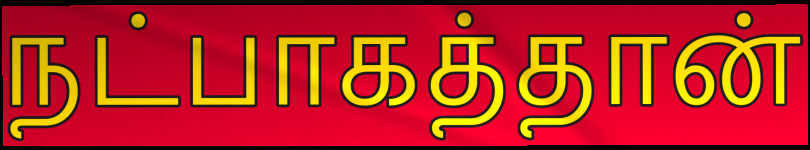
நட்பாகத்தான்